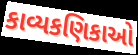
કાવ્યકણિકાઓ